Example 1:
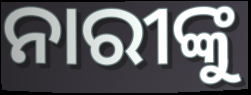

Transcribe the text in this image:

ନାରୀଙ୍କୁ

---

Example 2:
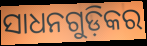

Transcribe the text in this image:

ସାଧନଗୁଡ଼ିକର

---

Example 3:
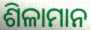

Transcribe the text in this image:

ଶିଳାମାନ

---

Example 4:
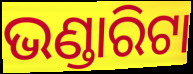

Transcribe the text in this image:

ଭଣ୍ଡାରିଟା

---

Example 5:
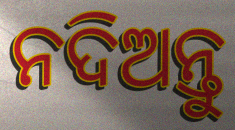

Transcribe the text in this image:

ନଦିଅନ୍ତୁ